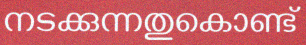
നടക്കുന്നതുകൊണ്ട്